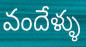
వందేళ్ళు